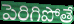
పెరిగిపోతే